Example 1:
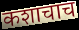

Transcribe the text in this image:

कशाचाच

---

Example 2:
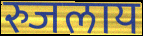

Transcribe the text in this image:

रुजलाय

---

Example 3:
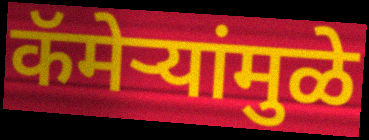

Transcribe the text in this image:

कॅमेऱ्यांमुळे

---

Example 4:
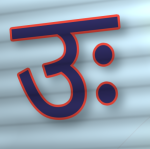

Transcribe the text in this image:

उः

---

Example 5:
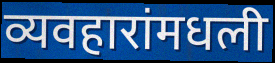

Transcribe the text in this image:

व्यवहारांमधली